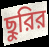
ছুরির